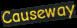
Causeway